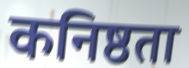
कनिष्ठता